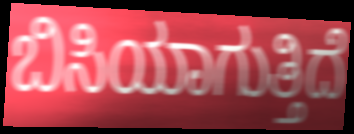
ಬಿಸಿಯಾಗುತ್ತಿದೆ